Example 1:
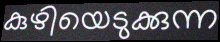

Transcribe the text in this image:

കുഴിയെടുക്കുന്ന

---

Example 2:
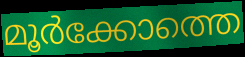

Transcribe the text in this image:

മൂർക്കോത്തെ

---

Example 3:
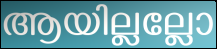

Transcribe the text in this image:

ആയില്ലല്ലോ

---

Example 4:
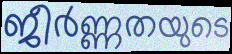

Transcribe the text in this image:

ജീർണ്ണതയുടെ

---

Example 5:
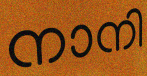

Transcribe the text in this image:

നാനി